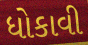
ધોકાવી